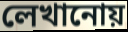
লেখানোয়